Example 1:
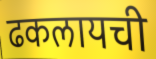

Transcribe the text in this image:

ढकलायची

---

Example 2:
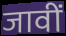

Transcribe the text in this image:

जावीं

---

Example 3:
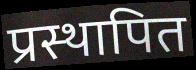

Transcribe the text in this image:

प्रस्थापित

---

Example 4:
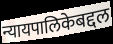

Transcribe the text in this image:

न्यायपालिकेबद्दल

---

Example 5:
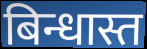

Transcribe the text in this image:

बिन्धास्त